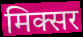
मिक्‍सर